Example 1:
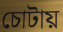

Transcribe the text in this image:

চোটায়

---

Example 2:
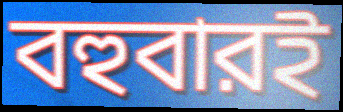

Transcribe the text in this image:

বহুবারই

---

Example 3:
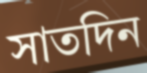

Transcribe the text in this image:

সাতদিন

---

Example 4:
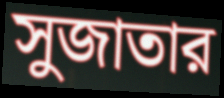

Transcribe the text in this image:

সুজাতার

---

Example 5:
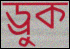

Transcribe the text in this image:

ড্রুক